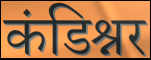
कंडिश्नर